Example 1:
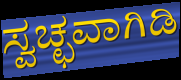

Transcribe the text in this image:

ಸ್ವಚ್ಛವಾಗಿಡಿ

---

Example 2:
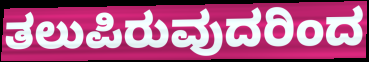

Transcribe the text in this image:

ತಲುಪಿರುವುದರಿಂದ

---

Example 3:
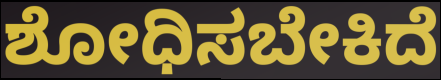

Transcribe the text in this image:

ಶೋಧಿಸಬೇಕಿದೆ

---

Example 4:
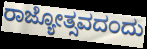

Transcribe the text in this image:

ರಾಜ್ಯೋತ್ಸವದಂದು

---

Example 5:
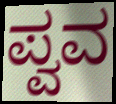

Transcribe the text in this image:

ಪ್ವವ